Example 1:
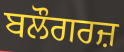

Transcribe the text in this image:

ਬਲੌਗਰਜ਼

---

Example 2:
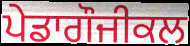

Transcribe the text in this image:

ਪੇਡਾਗੌਜੀਕਲ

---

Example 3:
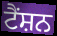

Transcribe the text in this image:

ਟੈਂਸ਼ਨ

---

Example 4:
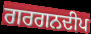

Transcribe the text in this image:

ਗਰਗਨਦੀਪ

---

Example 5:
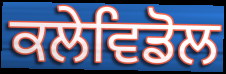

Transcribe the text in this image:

ਕਲੇਵਿਡੋਲ